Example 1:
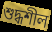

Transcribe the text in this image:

শুদ্ধশীল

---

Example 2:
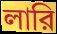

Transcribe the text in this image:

লারি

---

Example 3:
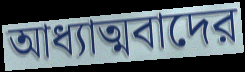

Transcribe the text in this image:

আধ্যাত্মবাদের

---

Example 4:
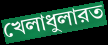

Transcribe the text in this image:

খেলাধুলারত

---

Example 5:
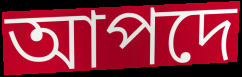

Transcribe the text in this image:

আপদে